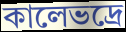
কালেভদ্রে